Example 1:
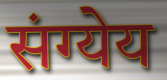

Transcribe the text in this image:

संग्येय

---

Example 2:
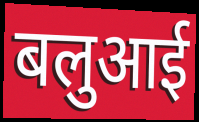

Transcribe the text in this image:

बलुआई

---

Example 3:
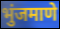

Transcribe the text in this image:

भुंजमाणे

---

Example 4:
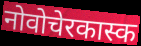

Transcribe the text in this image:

नोवोचेरकास्क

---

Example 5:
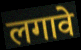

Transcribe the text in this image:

लगावे